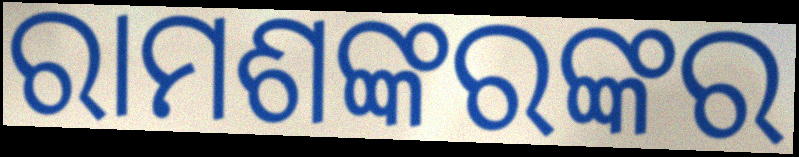
ରାମଶଙ୍କରଙ୍କର